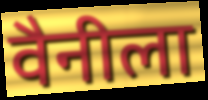
वैनीला